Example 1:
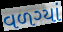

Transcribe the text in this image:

વળગ્યાં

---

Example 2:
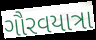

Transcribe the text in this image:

ગૌરવયાત્રા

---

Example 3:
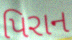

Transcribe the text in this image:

પિરાન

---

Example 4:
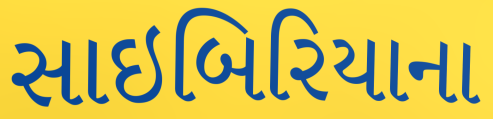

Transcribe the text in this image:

સાઇબિરિયાના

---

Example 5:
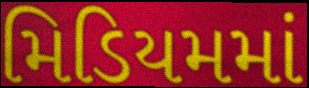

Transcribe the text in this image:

મિડિયમમાં